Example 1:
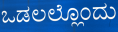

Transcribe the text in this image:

ಒಡಲಲ್ಲೊಂದು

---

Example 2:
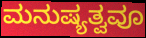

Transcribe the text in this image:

ಮನುಷ್ಯತ್ವವೂ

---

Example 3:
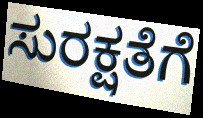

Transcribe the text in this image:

ಸುರಕ್ಷತೆಗೆ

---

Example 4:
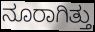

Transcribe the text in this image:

ನೂರಾಗಿತ್ತು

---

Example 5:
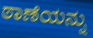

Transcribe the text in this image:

ಠಾಣೆಯನ್ನು